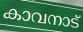
കാവനാട്